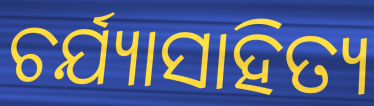
ଚର୍ଯ୍ୟାସାହିତ୍ୟ